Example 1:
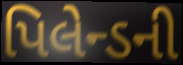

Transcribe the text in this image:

પિલેન્ડની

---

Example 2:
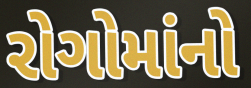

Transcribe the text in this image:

રોગોમાંનો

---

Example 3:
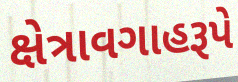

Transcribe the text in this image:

ક્ષેત્રાવગાહરૂપે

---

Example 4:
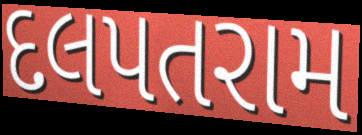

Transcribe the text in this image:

દલપતરામ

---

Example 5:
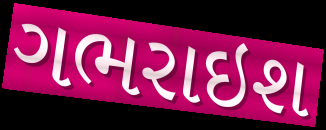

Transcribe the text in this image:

ગભરાઇશ